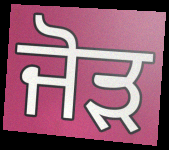
ਜੋੜ